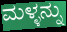
ಮಳ್ಳನ್ನು